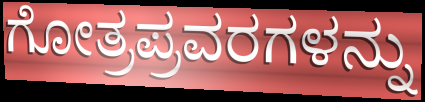
ಗೋತ್ರಪ್ರವರಗಳನ್ನು